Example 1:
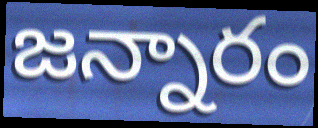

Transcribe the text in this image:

జన్నారం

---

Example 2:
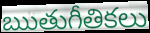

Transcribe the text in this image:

ఋతుగీతికలు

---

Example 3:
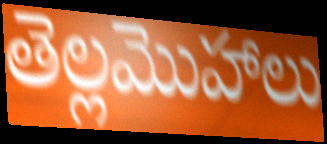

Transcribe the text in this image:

తెల్లమొహాలు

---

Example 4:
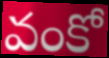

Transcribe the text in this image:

వంకో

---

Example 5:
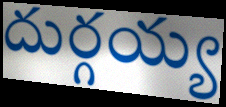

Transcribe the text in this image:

దుర్గయ్య